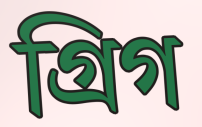
গ্রিগ